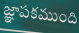
జ్ఞాపకముంది